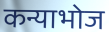
कन्याभोज